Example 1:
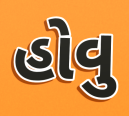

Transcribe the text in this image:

હોવુ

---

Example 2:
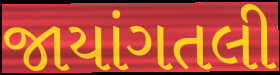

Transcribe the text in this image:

જાયાંગતલી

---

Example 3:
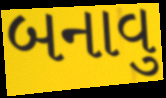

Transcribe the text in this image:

બનાવુ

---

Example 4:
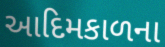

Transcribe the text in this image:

આદિમકાળના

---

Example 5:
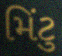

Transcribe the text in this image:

મિંટુ